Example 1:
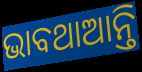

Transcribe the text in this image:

ଭାବଥାଆନ୍ତି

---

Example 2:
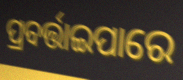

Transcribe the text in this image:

ପ୍ରବର୍ତ୍ତାଇପାରେ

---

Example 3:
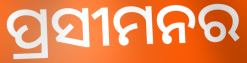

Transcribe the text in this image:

ପ୍ରସୀମନର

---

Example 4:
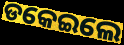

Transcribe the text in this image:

ଡକେଇଲେ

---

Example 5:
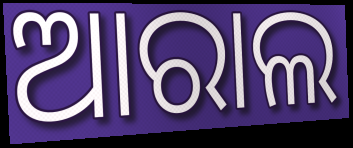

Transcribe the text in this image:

ଆରାଲ